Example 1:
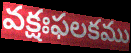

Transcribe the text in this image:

వక్షఃఫలకము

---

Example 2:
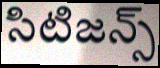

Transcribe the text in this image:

సిటిజన్స్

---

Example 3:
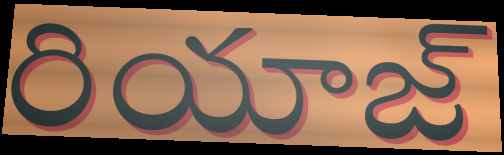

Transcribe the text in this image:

రియాజ్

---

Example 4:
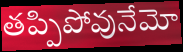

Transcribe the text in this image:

తప్పిపోవునేమో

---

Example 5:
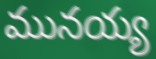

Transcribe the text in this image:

మునయ్య